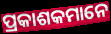
ପ୍ରକାଶକମାନେ